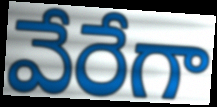
వేరేగా